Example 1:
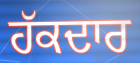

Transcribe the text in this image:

ਹੱਕਦਾਰ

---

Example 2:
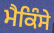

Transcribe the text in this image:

ਮੈਕਿੰਸੇ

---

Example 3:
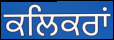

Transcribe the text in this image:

ਕਲਿਕਰਾਂ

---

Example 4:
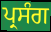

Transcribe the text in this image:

ਪ੍ਰਸੰਗ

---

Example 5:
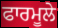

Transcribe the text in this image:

ਫਾਰਮੂਲੇ